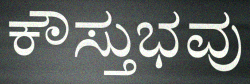
ಕೌಸ್ತುಭವು